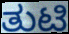
ತುಟಿ